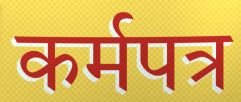
कर्मपत्र